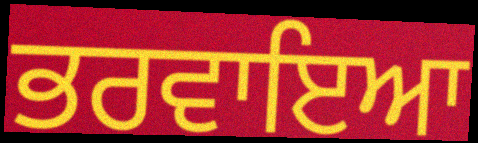
ਭਰਵਾਇਆ